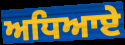
ਅਧਿਆਏ